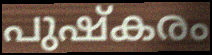
പുഷ്കരം